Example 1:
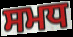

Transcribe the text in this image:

ਸਮਧ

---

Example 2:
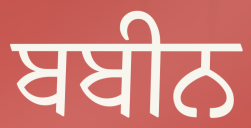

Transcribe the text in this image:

ਬਬੀਨ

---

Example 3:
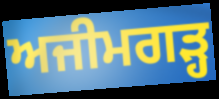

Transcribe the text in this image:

ਅਜੀਮਗੜ੍ਹ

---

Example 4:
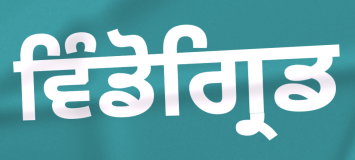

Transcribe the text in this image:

ਵਿੰਡੋਗ੍ਰਿਡ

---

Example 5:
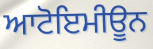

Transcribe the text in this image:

ਆਟੋਇਮੀਊਨ